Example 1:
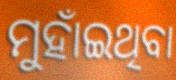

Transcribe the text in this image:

ମୁହାଁଇଥିବା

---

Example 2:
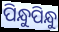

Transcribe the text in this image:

ପିନ୍ଧୁପିନ୍ଧୁ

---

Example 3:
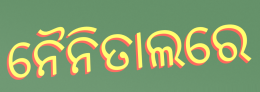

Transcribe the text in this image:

ନୈନିତାଲରେ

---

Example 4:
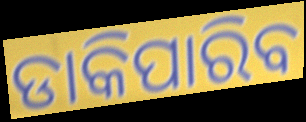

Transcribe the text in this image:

ଡାକିପାରିବ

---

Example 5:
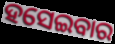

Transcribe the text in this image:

ହସେଇବାର